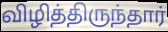
விழித்திருந்தார்